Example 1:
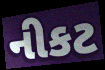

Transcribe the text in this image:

નીકટ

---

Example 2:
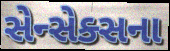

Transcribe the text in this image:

સેન્સેક્સના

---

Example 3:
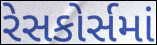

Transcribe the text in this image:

રેસકોર્સમાં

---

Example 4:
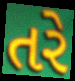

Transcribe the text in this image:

તરે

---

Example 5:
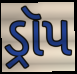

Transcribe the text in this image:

ડ્રૉપ